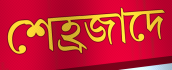
শেহ্রজাদে